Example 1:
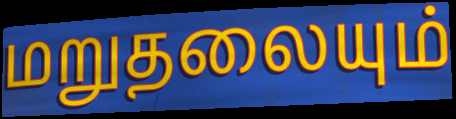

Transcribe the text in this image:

மறுதலையும்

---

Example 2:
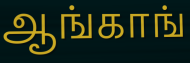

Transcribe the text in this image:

ஆங்காங்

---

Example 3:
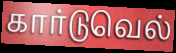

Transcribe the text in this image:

கார்டுவெல்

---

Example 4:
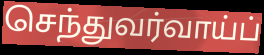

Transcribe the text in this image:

செந்துவர்வாய்ப்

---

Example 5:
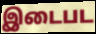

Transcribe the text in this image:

இடைபட